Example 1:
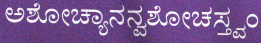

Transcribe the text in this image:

ಅಶೋಚ್ಯಾನನ್ವಶೋಚಸ್ತ್ವಂ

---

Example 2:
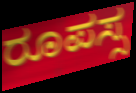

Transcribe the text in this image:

ರೂಪಸ್ಸ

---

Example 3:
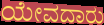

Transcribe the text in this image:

ಯೇವದಾರು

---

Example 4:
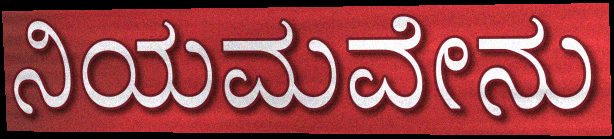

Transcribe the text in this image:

ನಿಯಮವೇನು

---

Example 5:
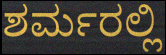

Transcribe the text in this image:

ಶರ್ಮರಲ್ಲಿ